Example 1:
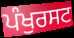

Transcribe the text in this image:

ਪੰਖੁਰਸਟ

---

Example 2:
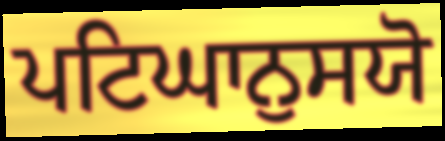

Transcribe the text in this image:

ਪਟਿਘਾਨੁਸਯੋ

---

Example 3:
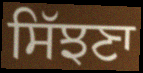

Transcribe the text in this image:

ਸਿੱਝਣਾ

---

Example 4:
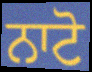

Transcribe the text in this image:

ਨਾਟੋ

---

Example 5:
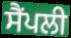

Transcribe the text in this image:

ਸੈਂਪਲੀ